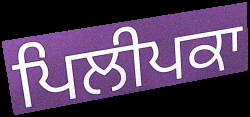
ਪਿਲੀਪਕਾ